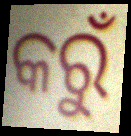
କରୁଁ